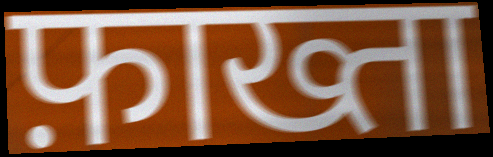
फ़ाख्ता